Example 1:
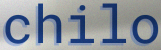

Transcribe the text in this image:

chilo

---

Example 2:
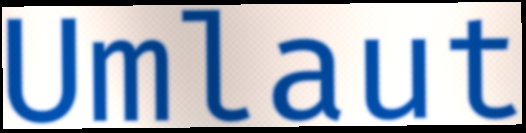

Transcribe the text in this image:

Umlaut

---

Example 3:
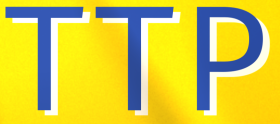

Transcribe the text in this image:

TTP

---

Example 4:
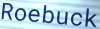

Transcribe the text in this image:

Roebuck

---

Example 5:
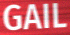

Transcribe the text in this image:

GAIL